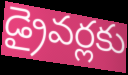
డ్రైవర్లకు